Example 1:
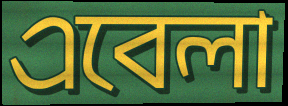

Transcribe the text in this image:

এবেলা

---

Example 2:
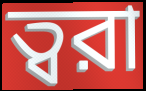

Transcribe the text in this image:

ত্বরা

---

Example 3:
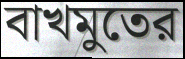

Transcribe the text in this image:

বাখমুতের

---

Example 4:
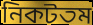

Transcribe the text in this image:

নিকটতম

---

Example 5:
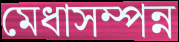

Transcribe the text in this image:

মেধাসম্পন্ন